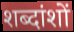
शब्दांशों